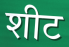
शीट